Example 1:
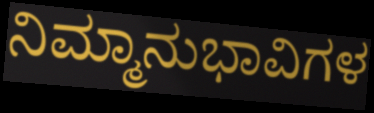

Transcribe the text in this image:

ನಿಮ್ಮಾನುಭಾವಿಗಳ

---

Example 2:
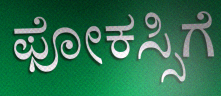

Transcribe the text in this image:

ಫೋಕಸ್ಸಿಗೆ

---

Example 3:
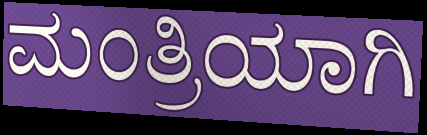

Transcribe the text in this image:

ಮಂತ್ರಿಯಾಗಿ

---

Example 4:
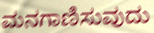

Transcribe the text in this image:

ಮನಗಾಣಿಸುವುದು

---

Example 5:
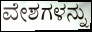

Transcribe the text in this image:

ವೇಶಗಳನ್ನು